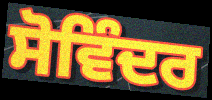
ਸੋਵਿੰਦਰ